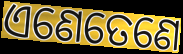
ଏଣେତେଣେ